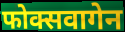
फोक्सवागेन